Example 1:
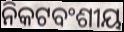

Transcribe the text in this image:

ନିକଟବଂଶୀୟ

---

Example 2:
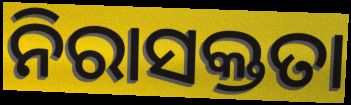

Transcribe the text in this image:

ନିରାସକ୍ତତା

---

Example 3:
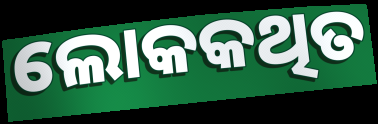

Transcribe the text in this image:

ଲୋକକଥିତ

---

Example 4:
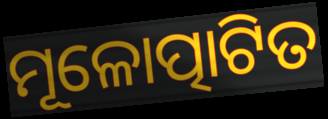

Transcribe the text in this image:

ମୂଳୋତ୍ପାଟିତ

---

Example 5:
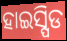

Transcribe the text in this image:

ହାଇସ୍ପିଡ